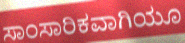
ಸಾಂಸಾರಿಕವಾಗಿಯೂ